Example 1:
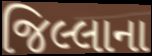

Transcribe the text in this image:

જિલ્લાના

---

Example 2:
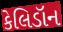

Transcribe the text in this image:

કેલિડૉન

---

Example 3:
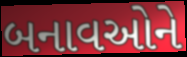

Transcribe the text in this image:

બનાવઓને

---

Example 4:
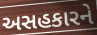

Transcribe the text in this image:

અસહકારને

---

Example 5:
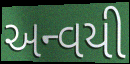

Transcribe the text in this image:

અન્વયી